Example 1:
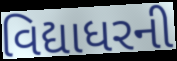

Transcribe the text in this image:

વિદ્યાધરની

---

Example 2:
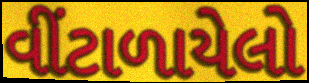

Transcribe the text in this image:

વીંટાળાયેલો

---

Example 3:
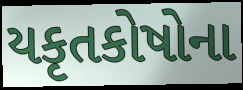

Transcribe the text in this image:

યકૃતકોષોના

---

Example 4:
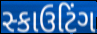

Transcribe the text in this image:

સ્કાઉટિંગ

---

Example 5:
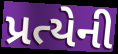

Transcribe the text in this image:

પ્રત્યેની